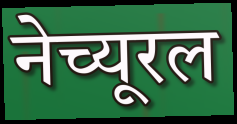
नेच्यूरल